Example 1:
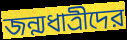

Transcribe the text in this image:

জন্মধাত্রীদের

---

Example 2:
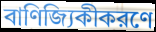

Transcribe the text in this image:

বাণিজ্যিকীকরণে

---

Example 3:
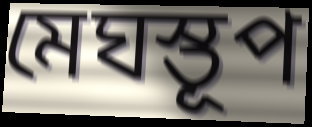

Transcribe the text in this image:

মেঘস্তূপ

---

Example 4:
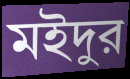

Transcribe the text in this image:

মইদুর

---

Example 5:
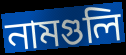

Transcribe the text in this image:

নামগুলি